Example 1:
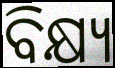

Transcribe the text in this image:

ବିକ୍ଷ୍ଯ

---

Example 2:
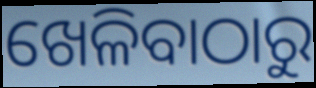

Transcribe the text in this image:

ଖେଳିବାଠାରୁ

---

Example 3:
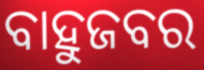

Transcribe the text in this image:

ବାହୁଜବର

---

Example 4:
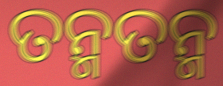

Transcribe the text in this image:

ତନ୍ମତନ୍ମ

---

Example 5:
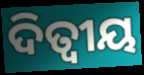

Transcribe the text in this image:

ଦିତ୍ୱୀୟ